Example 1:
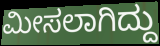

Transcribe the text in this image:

ಮೀಸಲಾಗಿದ್ದು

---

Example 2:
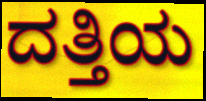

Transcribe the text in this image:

ದತ್ತಿಯ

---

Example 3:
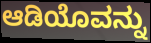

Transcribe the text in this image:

ಆಡಿಯೊವನ್ನು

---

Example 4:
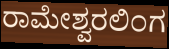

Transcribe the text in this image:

ರಾಮೇಶ್ವರಲಿಂಗ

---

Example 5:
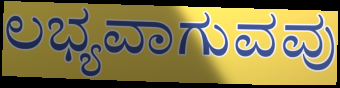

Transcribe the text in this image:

ಲಭ್ಯವಾಗುವವು